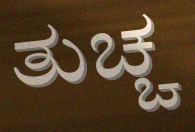
ತುಚ್ಚ